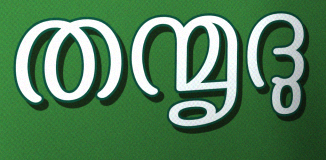
തന്മൃദു